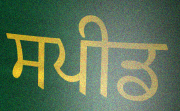
ਸਪੀਡ